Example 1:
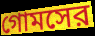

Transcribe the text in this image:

গোমসের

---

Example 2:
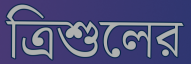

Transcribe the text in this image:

ত্রিশুলের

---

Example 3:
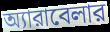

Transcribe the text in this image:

অ্যারাবেলার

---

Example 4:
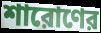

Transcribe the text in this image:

শারোণের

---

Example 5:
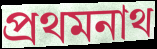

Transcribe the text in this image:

প্রথমনাথ